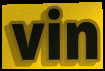
vin